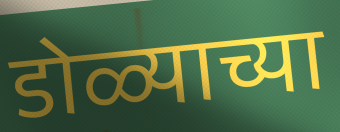
डोळ्याच्या